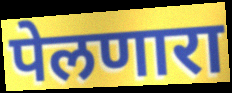
पेलणारा